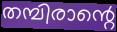
തമ്പിരാന്റെ